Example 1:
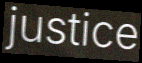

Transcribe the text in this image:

justice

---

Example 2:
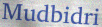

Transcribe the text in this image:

Mudbidri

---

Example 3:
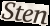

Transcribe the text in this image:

Sten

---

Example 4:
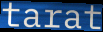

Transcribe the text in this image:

tarat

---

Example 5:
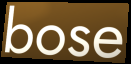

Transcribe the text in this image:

bose